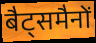
बैट्समैनों